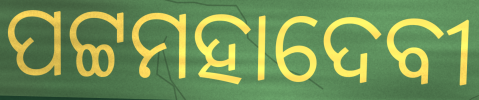
ପଟ୍ଟମହାଦେବୀ